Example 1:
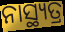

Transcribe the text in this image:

ନାସ୍ଥ୍ୟତ୍ର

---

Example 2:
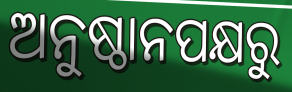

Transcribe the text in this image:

ଅନୁଷ୍ଠାନପକ୍ଷରୁ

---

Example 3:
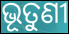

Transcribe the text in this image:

ଭୂତୁଣୀ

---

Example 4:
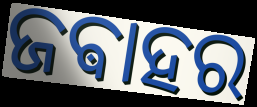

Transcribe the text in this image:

ଜଵାହର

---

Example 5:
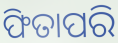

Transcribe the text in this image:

ଫିତାପରି